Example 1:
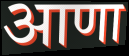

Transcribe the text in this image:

आणा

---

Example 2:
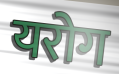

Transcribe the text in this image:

यरोग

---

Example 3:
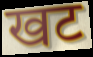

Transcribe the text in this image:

खट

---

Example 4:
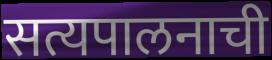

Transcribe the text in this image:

सत्यपालनाची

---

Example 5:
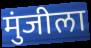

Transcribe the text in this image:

मुंजीला